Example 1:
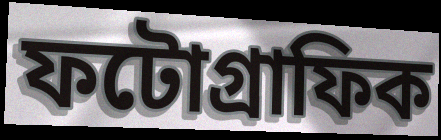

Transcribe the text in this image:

ফটোগ্রাফিক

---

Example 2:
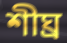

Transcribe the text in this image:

শীঘ্র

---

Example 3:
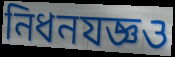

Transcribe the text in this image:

নিধনযজ্ঞও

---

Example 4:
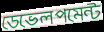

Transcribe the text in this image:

ডেভেলপমেন্ট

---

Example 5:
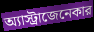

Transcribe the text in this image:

অ্যাস্ট্রাজেনেকার